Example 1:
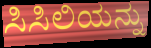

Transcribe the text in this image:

ಸಿಸಿಲಿಯನ್ನು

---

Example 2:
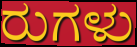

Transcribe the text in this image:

ರುಗಳು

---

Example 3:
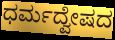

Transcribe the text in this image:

ಧರ್ಮದ್ವೇಷದ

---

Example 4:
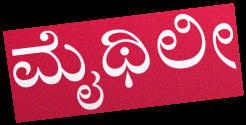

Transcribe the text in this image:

ಮೈಥಿಲೀ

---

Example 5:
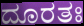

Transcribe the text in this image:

ದೂರತಃ